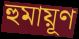
হুমায়ূণ